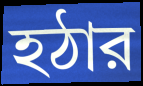
হঠার